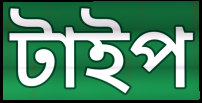
টাইপ